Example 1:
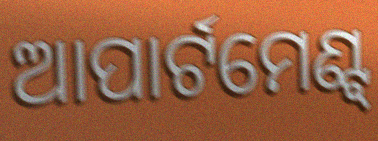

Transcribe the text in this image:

ଆପାର୍ଟମେଣ୍ଟ୍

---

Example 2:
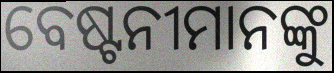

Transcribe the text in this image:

ବେଷ୍ଟନୀମାନଙ୍କୁ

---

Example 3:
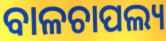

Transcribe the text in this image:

ବାଳଚାପଲ୍ୟ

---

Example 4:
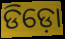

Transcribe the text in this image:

ଡିଡ଼ୋ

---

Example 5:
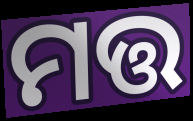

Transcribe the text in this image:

ମତ୍ତ